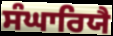
ਸੰਘਾਰਿਯੈ